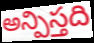
అన్పిస్తది